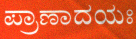
ಪ್ರಾಣಾದಯಃ